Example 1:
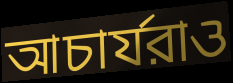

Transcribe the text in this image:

আচার্যরাও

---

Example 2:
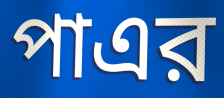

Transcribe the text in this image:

পাএর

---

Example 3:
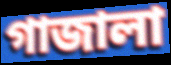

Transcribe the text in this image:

গাজালা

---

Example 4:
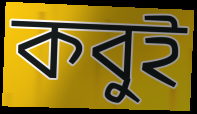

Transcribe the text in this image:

কবুই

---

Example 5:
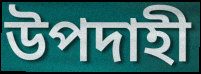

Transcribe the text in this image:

উপদাহী